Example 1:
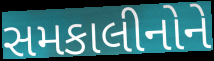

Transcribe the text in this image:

સમકાલીનોને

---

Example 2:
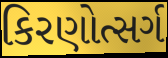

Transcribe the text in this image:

કિરણોત્સર્ગ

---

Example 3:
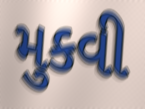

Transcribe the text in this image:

મુકવી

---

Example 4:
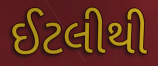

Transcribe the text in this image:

ઈટલીથી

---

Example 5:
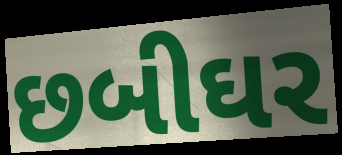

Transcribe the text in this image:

છબીઘર